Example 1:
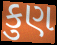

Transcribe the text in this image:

કુણ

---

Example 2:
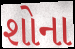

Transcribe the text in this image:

શોના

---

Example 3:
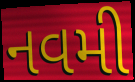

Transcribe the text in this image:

નવમી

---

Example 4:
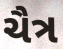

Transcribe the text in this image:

ચૈત્ર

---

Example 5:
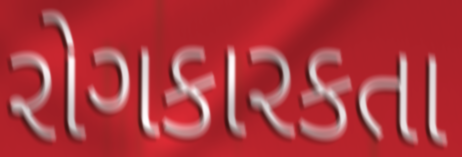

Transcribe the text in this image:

રોગકારકતા